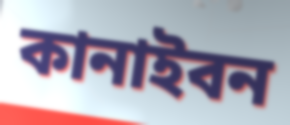
কানাইবন